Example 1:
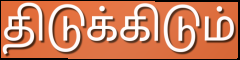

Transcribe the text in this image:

திடுக்கிடும்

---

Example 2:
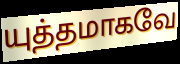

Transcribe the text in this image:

யுத்தமாகவே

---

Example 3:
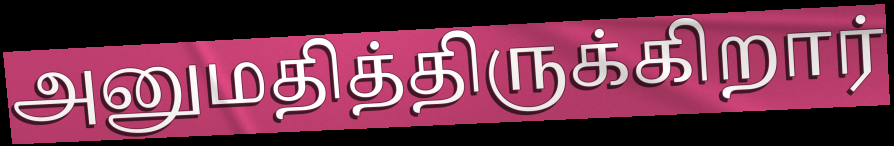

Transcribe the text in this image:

அனுமதித்திருக்கிறார்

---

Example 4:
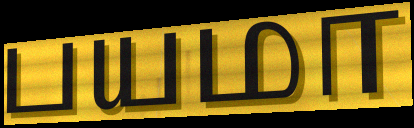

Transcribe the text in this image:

பயமா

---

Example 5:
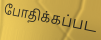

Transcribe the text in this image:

போதிக்கப்பட